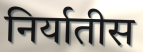
निर्यातीस